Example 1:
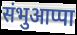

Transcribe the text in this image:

संभुआप्पा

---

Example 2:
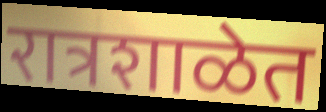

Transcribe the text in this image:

रात्रशाळेत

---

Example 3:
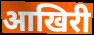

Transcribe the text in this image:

आखिरी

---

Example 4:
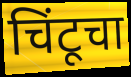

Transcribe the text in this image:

चिंटूचा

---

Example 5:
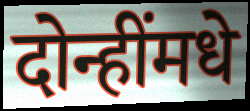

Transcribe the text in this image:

दोन्हींमधे